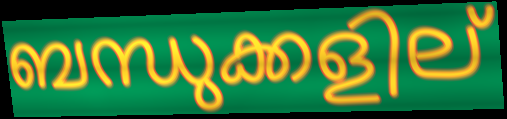
ബന്ധുക്കളില്